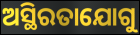
ଅସ୍ଥିରତାଯୋଗୁ